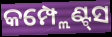
କମ୍ପ୍ଲେଣ୍ଟ୍‌ସ